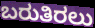
ಬರುತಿರಲು